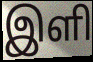
இளி